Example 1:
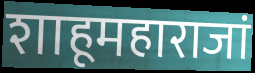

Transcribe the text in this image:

शाहूमहाराजां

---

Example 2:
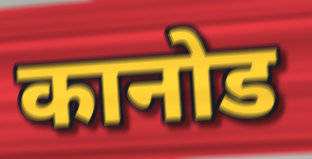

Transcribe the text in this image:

कानोड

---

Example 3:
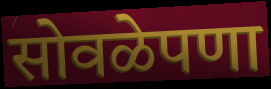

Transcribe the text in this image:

सोवळेपणा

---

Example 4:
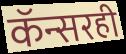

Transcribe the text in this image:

कॅन्सरही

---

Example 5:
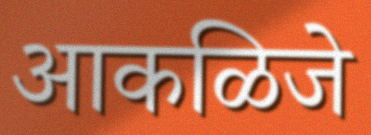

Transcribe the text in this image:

आकळिजे